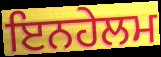
ਇਨਹੇਲਮ